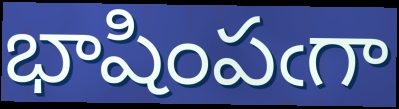
భాషింపఁగా